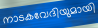
നാടകവേദിയുമായി